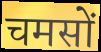
चमसों